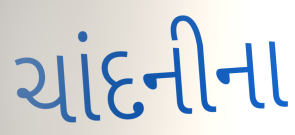
ચાંદનીના